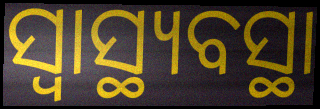
ସ୍ଵାସ୍ଥ୍ୟବସ୍ଥା